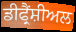
ਡੀਫ੍ਰੈਂਸ਼ੀਅਲ